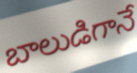
బాలుడిగానే